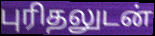
புரிதலுடன்